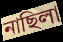
নাছিলা